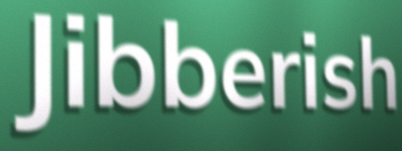
Jibberish